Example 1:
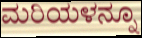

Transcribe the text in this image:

ಮರಿಯಳನ್ನೂ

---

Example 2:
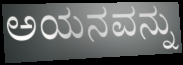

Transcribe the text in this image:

ಅಯನವನ್ನು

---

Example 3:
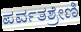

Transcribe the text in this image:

ಪರ್ವತಶ್ರೇಣಿ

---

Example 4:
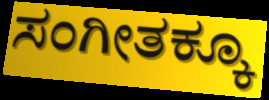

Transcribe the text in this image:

ಸಂಗೀತಕ್ಕೂ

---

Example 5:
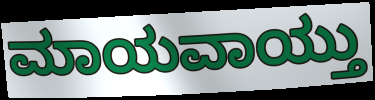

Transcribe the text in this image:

ಮಾಯವಾಯ್ತು